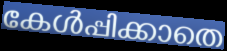
കേൾപ്പിക്കാതെ